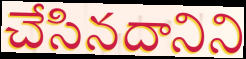
చేసినదానిని